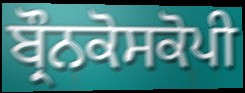
ਬ੍ਰੌਨਕੋਸਕੋਪੀ